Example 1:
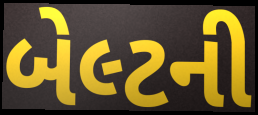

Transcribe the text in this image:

બેલ્ટની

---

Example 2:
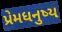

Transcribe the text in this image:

પ્રેમધનુષ્ય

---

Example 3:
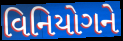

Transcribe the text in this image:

વિનિયોગને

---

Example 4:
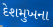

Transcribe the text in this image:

દેશમુખના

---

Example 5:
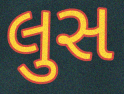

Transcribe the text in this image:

લુસ